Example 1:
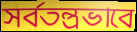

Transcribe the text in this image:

সর্বতন্ত্রভাবে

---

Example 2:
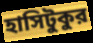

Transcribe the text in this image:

হাসিটুকুর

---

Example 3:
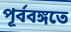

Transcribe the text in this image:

পূর্ববঙ্গতে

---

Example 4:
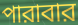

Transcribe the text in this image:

পারাবার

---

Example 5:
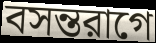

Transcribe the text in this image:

বসন্তরাগে